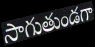
సాగుతుండగా